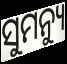
ସୁମନ୍ୟୁ